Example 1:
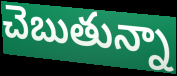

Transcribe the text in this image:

చెబుతున్నా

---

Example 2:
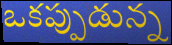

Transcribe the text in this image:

ఒకప్పుడున్న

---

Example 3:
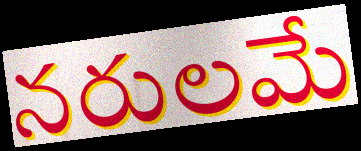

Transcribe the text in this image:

నరులమే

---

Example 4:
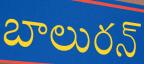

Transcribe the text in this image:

బాలురన్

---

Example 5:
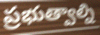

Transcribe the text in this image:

ప్రభుత్వాల్ని